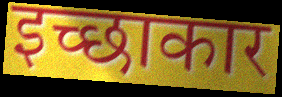
इच्छाकार